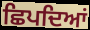
ਛਿਪਦਿਆਂ